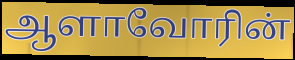
ஆளாவோரின்